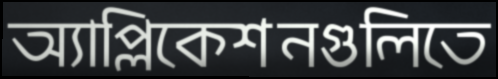
অ্যাপ্লিকেশনগুলিতে